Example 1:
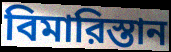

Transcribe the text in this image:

বিমারিস্তান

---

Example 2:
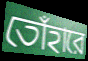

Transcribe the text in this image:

তোঁহারে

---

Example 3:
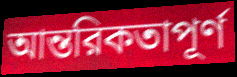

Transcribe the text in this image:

আন্তরিকতাপূর্ণ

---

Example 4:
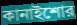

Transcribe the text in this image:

কানাইশোর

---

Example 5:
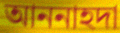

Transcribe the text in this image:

আননাহদা